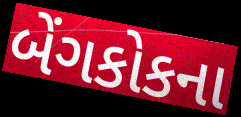
બેંગકોકના